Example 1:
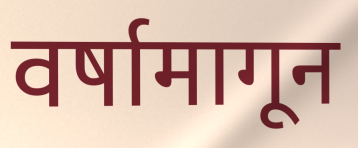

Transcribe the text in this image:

वर्षामागून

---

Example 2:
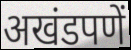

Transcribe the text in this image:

अखंडपणें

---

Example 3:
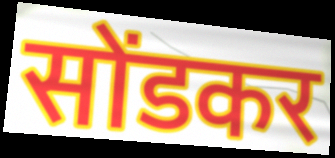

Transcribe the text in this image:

सोंडकर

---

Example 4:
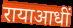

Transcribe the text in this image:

रायाआधीं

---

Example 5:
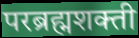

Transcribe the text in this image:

परब्रह्मशक्ती